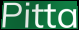
Pitta